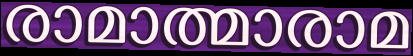
രാമാത്മാരാമ